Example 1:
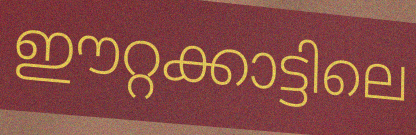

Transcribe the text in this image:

ഈറ്റക്കാട്ടിലെ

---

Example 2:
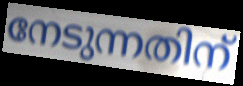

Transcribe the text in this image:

നേടുന്നതിന്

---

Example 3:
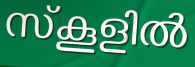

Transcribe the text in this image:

സ്‌കൂളിൽ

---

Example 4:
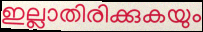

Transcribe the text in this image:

ഇല്ലാതിരിക്കുകയും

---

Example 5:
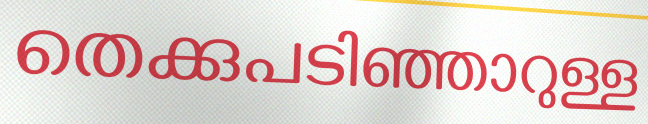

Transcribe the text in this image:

തെക്കുപടിഞ്ഞാറുള്ള